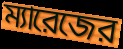
ম্যারেজের